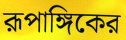
রূপাঙ্গিকের